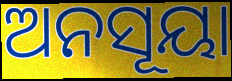
ଅନସୂୟା